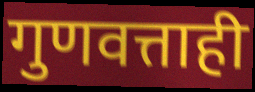
गुणवत्ताही